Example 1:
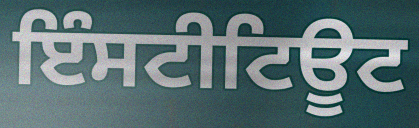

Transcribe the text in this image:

ਇੰਸਟੀਟਿਊਟ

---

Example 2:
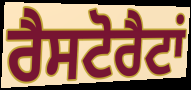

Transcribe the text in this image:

ਰੈਸਟੋਰੈਟਾਂ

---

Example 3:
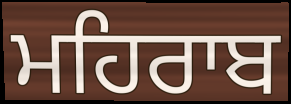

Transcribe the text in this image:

ਮਹਿਰਾਬ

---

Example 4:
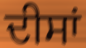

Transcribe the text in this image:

ਦੀਸਾਂ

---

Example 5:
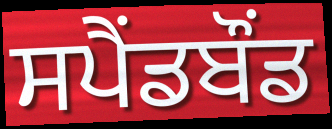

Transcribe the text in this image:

ਸਪੈਂਡਬੌਂਡ